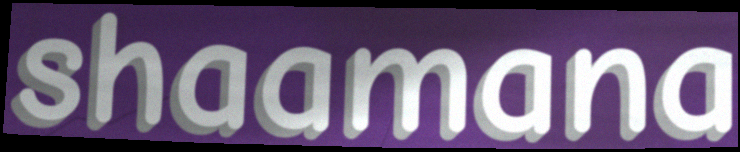
shaamana